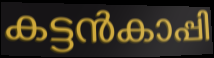
കട്ടൻകാപ്പി